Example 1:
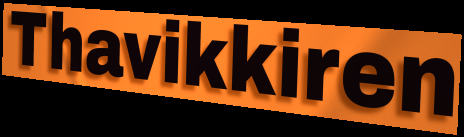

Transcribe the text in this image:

Thavikkiren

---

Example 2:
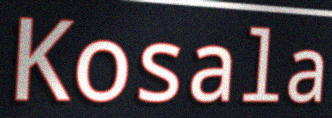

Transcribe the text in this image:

Kosala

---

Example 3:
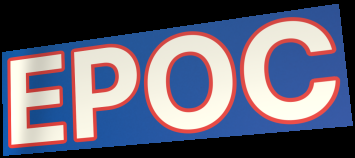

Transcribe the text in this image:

EPOC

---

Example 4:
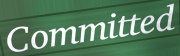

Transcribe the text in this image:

Committed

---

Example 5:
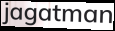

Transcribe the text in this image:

jagatman